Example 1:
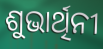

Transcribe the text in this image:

ଶୁଭାର୍ଥିନୀ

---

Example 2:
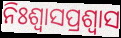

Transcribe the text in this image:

ନିଃଶ୍ୱାସପ୍ରଶ୍ୱାସ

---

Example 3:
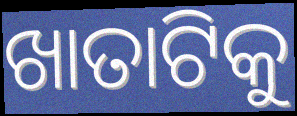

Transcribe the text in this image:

ଖାତାଟିକୁ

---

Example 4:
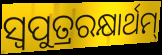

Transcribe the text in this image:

ସ୍ଵପୁତ୍ରରକ୍ଷାର୍ଥମ୍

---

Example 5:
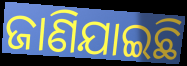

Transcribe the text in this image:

ଜାଣିଯାଇଛି